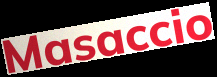
Masaccio